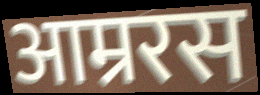
आम्ररस